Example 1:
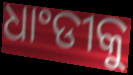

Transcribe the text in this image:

ଧାଂଡୀକୁ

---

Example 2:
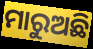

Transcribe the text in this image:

ମାରୁଅଛି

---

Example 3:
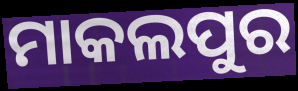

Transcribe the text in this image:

ମାକଲପୁର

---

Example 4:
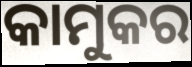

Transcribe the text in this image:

କାମୁକର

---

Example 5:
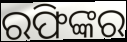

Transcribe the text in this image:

ରଫିଙ୍କର